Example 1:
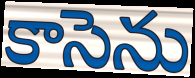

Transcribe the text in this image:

కాసెను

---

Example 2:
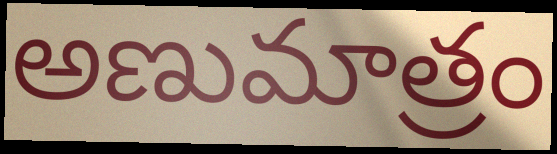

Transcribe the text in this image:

అణుమాత్రం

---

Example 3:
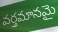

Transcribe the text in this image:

వర్తమానమై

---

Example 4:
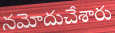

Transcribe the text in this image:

నమోదుచేశారు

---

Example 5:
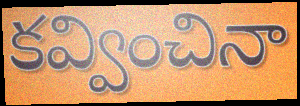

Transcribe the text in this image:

కవ్వించినా